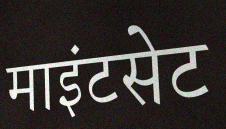
माइंटसेट